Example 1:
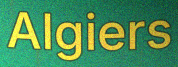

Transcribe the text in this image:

Algiers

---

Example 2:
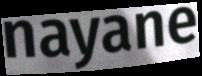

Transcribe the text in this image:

nayane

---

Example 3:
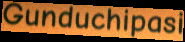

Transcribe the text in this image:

Gunduchipasi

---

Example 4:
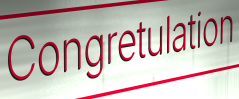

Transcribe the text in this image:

Congretulation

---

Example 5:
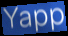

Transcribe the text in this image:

Yapp